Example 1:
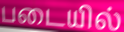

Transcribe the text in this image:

படையில்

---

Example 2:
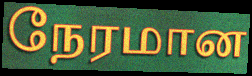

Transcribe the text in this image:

நேரமான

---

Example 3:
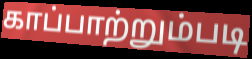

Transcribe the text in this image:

காப்பாற்றும்படி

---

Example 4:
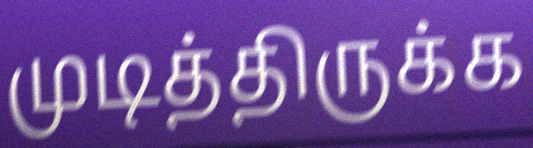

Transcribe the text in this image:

முடித்திருக்க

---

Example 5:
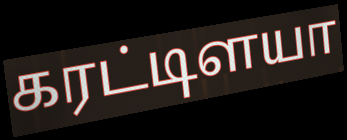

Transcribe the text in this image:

கரட்டிளயா